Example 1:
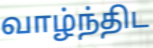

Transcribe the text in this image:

வாழ்ந்திட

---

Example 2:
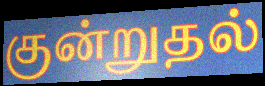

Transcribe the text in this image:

குன்றுதல்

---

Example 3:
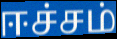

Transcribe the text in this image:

ஈச்சம்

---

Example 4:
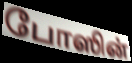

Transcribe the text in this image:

போஸின்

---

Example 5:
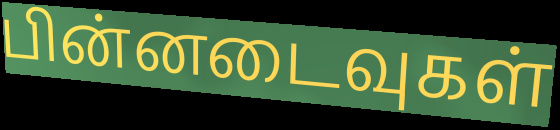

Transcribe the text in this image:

பின்னடைவுகள்